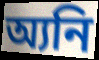
অ্যনি